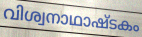
വിശ്വനാഥാഷ്ടകം